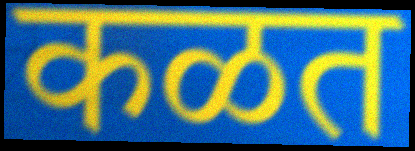
कळत